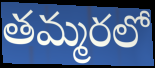
తమ్మరలో